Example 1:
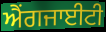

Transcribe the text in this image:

ਐਂਗਜਾਈਟੀ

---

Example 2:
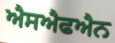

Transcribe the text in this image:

ਐਸਐਫਐਨ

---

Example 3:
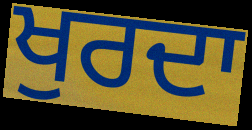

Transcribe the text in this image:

ਖੁਰਦਾ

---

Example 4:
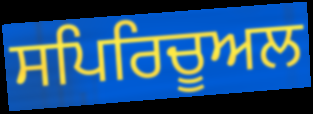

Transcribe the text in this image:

ਸਪਿਰਿਚੂਅਲ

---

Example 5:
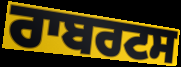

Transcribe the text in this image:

ਰਾਬਰਟਸ